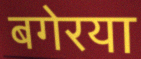
बगेरया